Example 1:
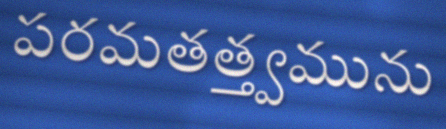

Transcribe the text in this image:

పరమతత్త్వమును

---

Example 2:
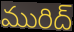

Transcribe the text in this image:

మురిద్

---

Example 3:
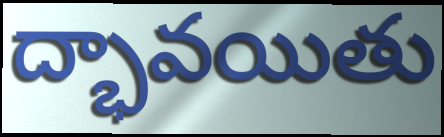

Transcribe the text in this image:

ద్భావయితు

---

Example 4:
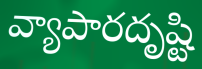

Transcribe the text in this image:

వ్యాపారదృష్టి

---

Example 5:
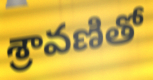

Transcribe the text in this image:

శ్రావణితో